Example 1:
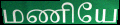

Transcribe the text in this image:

மணியே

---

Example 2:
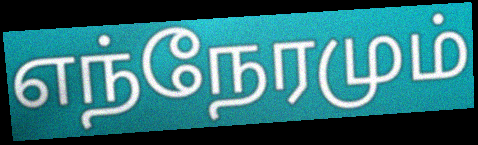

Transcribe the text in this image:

எந்நேரமும்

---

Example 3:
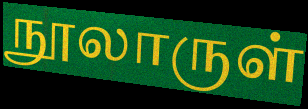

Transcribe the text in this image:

நூலாருள்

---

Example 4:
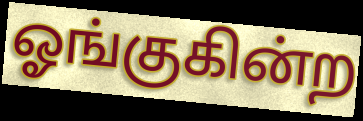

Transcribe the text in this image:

ஓங்குகின்ற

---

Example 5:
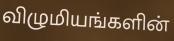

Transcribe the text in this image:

விழுமியங்களின்